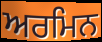
ਅਰਮਿਨ